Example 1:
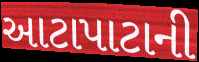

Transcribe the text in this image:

આટાપાટાની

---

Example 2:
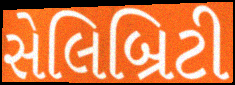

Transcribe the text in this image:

સેલિબ્રિટી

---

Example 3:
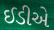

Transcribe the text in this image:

ઈડીએ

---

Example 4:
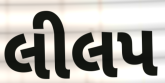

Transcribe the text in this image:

લીલપ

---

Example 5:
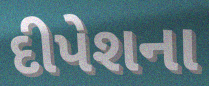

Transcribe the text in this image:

દીપેશના